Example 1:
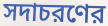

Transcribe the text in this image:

সদাচরণের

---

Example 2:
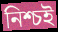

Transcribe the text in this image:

নিশ্চই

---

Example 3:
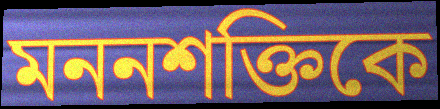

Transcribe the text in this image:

মননশক্তিকে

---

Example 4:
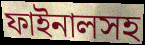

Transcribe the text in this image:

ফাইনালসহ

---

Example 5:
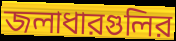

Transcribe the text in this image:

জলাধারগুলির